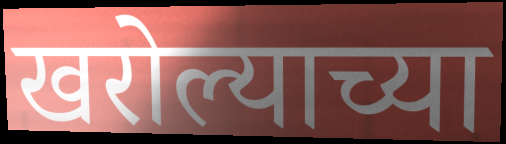
खरोल्याच्या